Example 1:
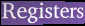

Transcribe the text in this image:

Registers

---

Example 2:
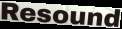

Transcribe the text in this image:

Resound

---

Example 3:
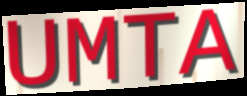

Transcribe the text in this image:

UMTA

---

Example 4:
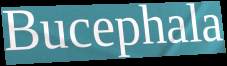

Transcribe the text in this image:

Bucephala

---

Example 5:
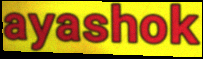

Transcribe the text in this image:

ayashok